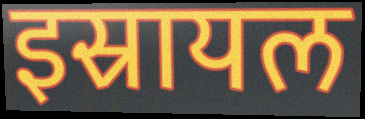
इस्रायल